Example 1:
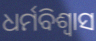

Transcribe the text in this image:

ଧର୍ମବିଶ୍ବାସ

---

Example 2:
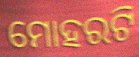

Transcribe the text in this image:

ମୋହରଟି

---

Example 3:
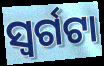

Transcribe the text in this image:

ସ୍ୱର୍ଗଟା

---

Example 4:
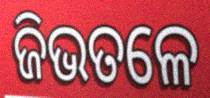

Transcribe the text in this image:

ଜିଭତଳେ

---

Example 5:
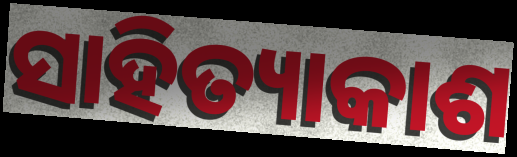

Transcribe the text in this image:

ସାହିତ୍ୟାକାଶ